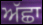
ਅੱਛਾ